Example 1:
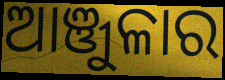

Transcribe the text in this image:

ଆଞ୍ଜୁଳାର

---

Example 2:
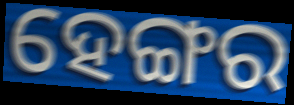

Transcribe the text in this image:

ହେଙ୍ଗର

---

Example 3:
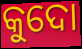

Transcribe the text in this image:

କୁଦୋ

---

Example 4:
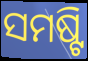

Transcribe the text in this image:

ସମଷ୍ଟି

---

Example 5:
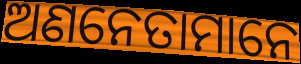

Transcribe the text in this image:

ଅଣନେତାମାନେ